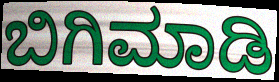
ಬಿಗಿಮಾಡಿ